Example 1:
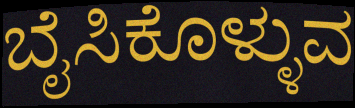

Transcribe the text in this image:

ಬೈಸಿಕೊಳ್ಳುವ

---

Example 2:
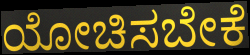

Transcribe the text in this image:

ಯೋಚಿಸಬೇಕೆ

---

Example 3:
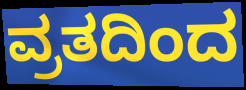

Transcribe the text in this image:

ವ್ರತದಿಂದ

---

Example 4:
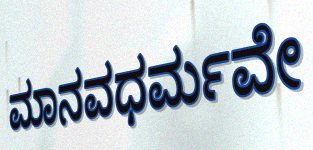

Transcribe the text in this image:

ಮಾನವಧರ್ಮವೇ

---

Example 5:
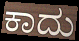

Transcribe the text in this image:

ಕಾದು